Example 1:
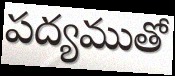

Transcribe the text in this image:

పద్యముతో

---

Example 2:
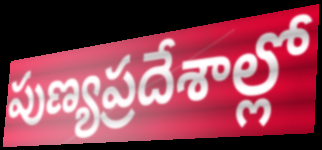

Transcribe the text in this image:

పుణ్యప్రదేశాల్లో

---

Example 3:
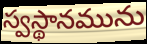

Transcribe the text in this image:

స్వస్థానమును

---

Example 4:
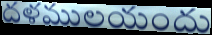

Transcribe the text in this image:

దళములయందు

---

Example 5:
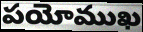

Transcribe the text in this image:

పయోముఖ